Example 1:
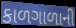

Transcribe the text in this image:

કાળગાળાની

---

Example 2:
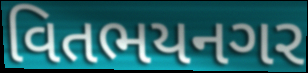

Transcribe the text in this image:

વિતભયનગર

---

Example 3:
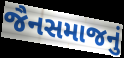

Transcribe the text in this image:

જૈનસમાજનું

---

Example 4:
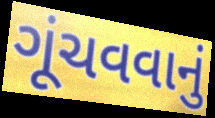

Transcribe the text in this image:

ગૂંચવવાનું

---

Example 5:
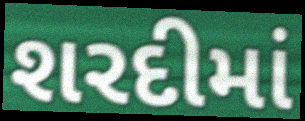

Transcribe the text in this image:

શરદીમાં